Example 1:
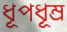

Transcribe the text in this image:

ধূপধূম্র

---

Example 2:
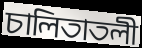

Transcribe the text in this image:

চালিতাতলী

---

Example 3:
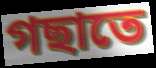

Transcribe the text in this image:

গছাতে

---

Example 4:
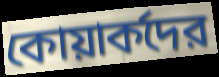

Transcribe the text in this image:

কোয়ার্কদের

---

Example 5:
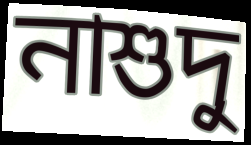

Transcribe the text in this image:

নাশুদু